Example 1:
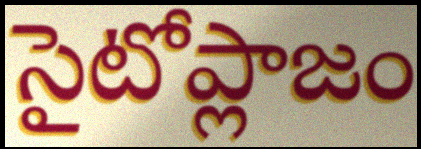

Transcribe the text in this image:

సైటోప్లాజం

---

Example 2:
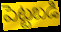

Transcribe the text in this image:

పెట్టబడి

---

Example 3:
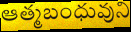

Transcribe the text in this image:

ఆత్మబంధువుని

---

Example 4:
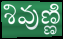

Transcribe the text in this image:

శివుణ్ణి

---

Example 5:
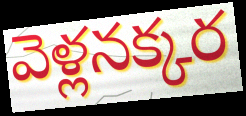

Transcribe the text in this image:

వెళ్లనక్కర